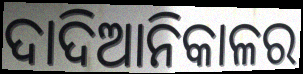
ଦାଦିଆନିକାଳର